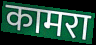
कामरा